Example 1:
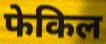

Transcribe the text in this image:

फेकिल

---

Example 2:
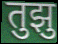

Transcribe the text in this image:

तुझु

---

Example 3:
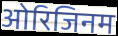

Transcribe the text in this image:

ओरिजिनम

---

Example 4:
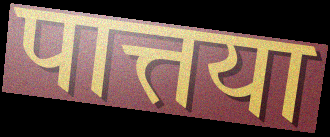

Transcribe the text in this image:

पात्तया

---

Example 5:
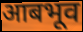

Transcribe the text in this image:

आबभूव